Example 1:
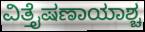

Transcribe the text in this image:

ವಿತ್ತೈಷಣಾಯಾಶ್ಚ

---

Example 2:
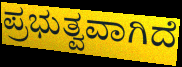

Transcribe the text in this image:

ಪ್ರಭುತ್ವವಾಗಿದೆ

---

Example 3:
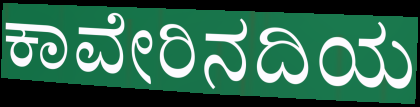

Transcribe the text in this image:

ಕಾವೇರಿನದಿಯ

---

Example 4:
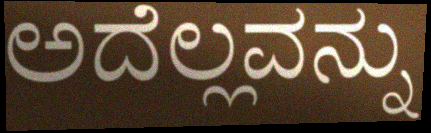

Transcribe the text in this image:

ಅದೆಲ್ಲವನ್ನು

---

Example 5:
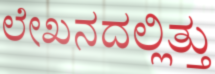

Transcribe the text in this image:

ಲೇಖನದಲ್ಲಿತ್ತು